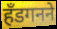
हँडगनने